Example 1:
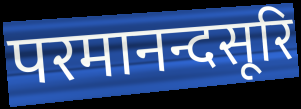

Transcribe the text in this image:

परमानन्दसूरि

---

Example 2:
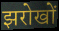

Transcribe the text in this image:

झरोखों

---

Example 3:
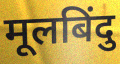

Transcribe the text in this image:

मूलबिंदु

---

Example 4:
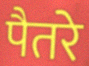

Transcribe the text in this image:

पैतरे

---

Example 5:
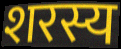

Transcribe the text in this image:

शरस्य